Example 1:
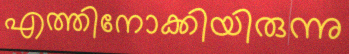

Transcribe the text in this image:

എത്തിനോക്കിയിരുന്നു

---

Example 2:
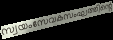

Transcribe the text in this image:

സ്വയംസേവകസംഘത്തിന്റെ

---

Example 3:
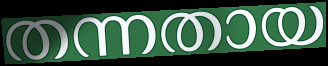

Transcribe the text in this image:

തന്നതായ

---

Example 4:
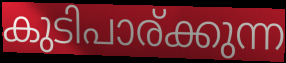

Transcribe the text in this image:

കുടിപാര്ക്കുന്ന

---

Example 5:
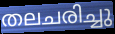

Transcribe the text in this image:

തലചരിച്ചു